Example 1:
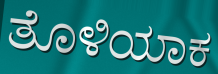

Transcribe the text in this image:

ತೊಳಿಯಾಕ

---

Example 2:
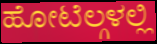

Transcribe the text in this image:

ಹೋಟೆಲ್ಗಳಲ್ಲಿ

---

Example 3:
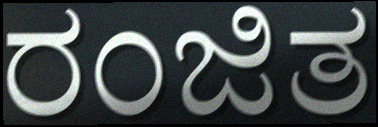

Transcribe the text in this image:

ರಂಜಿತ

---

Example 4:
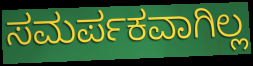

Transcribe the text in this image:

ಸಮರ್ಪಕವಾಗಿಲ್ಲ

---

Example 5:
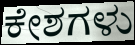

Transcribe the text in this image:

ಕೇಶಗಳು